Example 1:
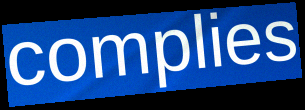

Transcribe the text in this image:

complies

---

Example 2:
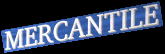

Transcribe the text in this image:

MERCANTILE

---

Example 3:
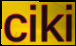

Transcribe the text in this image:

ciki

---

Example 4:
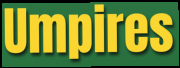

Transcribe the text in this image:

Umpires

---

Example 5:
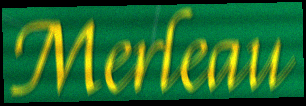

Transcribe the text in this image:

Merleau